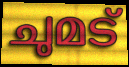
ചുമട്